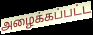
அழைக்கப்பட்ட